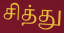
சித்து